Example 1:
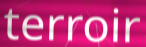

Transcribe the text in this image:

terroir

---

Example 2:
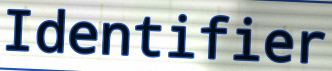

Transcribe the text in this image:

Identifier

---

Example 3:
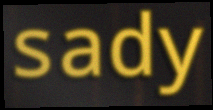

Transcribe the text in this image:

sady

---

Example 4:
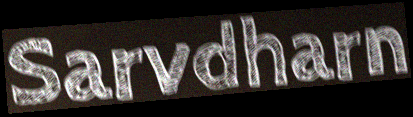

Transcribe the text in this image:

Sarvdharn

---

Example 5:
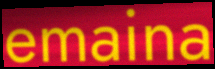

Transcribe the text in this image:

emaina